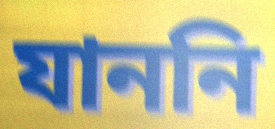
যাননি